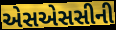
એસએસસીની